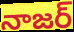
నాజర్